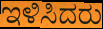
ಇಳಿಸಿದರು